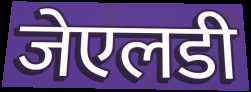
जेएलडी